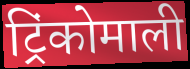
ट्रिंकोमाली